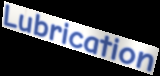
Lubrication